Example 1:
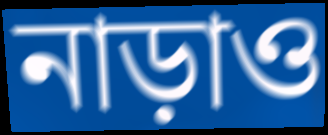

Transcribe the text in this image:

নাড়াও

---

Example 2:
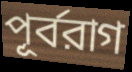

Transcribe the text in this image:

পূর্বরাগ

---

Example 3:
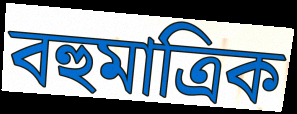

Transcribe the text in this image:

বহুমাত্রিক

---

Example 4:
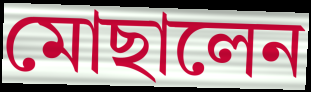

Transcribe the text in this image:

মোছালেন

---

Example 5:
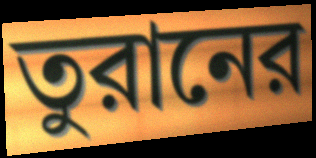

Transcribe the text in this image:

তুরানের